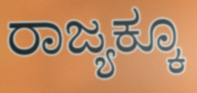
ರಾಜ್ಯಕ್ಕೂ